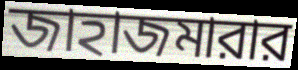
জাহাজমারার